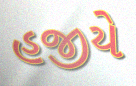
હજીયે